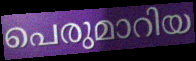
പെരുമാറിയ